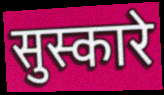
सुस्कारे